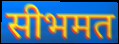
सीभमत